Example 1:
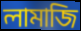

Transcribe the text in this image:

লামাজি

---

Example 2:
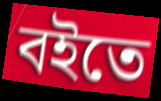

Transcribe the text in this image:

বইতে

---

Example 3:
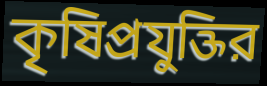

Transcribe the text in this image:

কৃষিপ্রযুক্তির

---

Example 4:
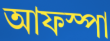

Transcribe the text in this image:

আফস্পা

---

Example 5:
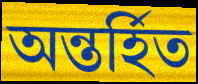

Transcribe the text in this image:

অন্তর্হিত